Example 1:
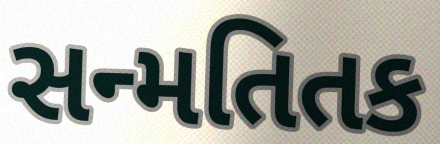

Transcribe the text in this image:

સન્મતિતક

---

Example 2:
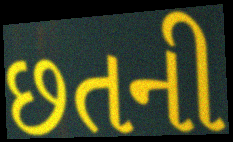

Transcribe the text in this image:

છતની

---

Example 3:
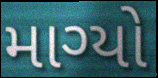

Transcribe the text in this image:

માગ્યો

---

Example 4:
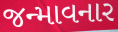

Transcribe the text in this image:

જન્માવનાર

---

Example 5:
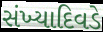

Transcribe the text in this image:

સંખ્યાદિવડે